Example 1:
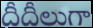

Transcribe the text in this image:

దీదీలుగా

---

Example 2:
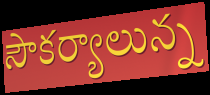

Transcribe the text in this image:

సౌకర్యాలున్న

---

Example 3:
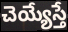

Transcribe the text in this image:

చెయ్యేస్తే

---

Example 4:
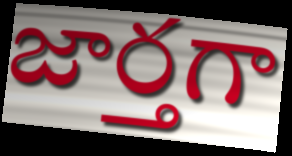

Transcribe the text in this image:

జార్తగా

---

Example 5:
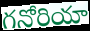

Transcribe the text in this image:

గనోరియా